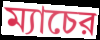
ম্যাচের